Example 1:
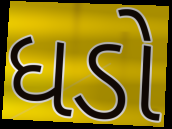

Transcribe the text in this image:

ધડો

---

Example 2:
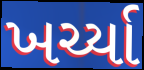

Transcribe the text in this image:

ખર્ચ્યા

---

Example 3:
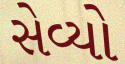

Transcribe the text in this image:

સેવ્યો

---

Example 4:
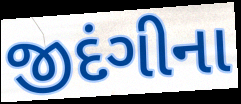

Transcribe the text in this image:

જીદંગીના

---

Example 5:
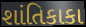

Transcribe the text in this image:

શાંતિકાકા